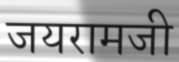
जयरामजी